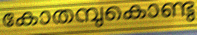
കോതമ്പുകൊണ്ടു